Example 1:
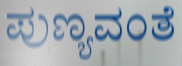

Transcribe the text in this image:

ಪುಣ್ಯವಂತೆ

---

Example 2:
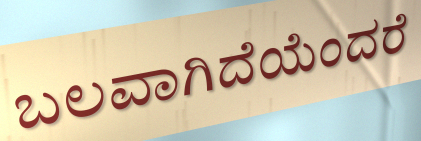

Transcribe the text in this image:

ಬಲವಾಗಿದೆಯೆಂದರೆ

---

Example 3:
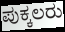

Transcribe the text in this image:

ಪುಕ್ಕಲರು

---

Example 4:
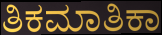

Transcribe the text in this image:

ತಿಕಮಾತಿಕಾ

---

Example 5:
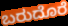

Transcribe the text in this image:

ಬರುದೊರೆ